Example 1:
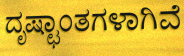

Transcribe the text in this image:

ದೃಷ್ಟಾಂತಗಳಾಗಿವೆ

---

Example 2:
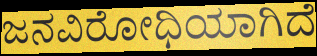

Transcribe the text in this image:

ಜನವಿರೋಧಿಯಾಗಿದೆ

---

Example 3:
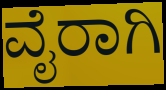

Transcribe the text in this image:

ವೈರಾಗಿ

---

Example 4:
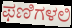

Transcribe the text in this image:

ಫಣಿಗಳಲಿ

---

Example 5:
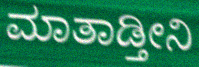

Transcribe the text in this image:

ಮಾತಾಡ್ತೀನಿ